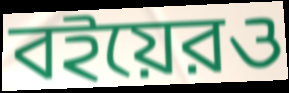
বইয়েরও